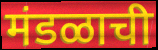
मंडळाची